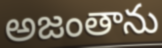
అజంతాను